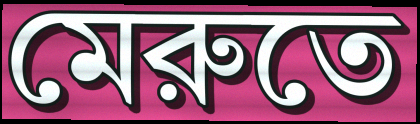
মেরুতে